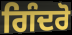
ਗਿੰਦਰੋ